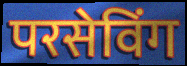
परसेविंग